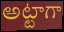
అట్టాగా